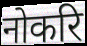
नोकरि